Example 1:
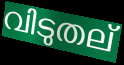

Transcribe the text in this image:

വിടുതല്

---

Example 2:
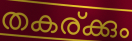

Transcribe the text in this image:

തകര്ക്കും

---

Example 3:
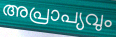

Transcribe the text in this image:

അപ്രാപ്യവും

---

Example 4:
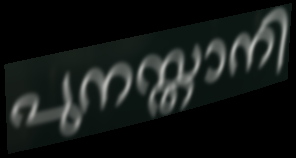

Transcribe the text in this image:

പുനസ്താനി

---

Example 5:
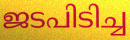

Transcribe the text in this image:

ജടപിടിച്ച